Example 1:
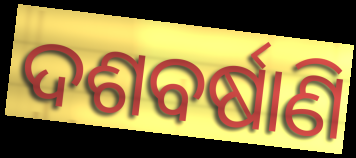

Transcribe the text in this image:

ଦଶବର୍ଷାଣି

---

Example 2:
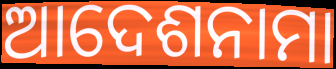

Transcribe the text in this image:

ଆଦେଶନାମା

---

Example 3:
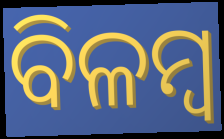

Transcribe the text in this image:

ବିଳମ୍ଵ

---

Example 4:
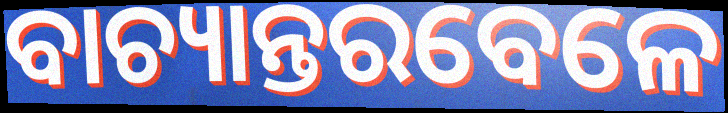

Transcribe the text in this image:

ବାଚ୍ୟାନ୍ତରବେଳେ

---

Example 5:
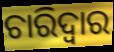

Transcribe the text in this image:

ଚାରିଦ୍ୱାର